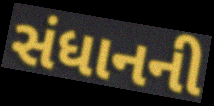
સંધાનની